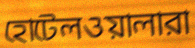
হোটেলওয়ালারা